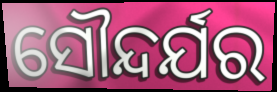
ସୌନ୍ଦର୍ଯର